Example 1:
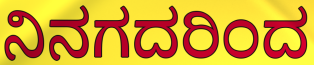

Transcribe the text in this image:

ನಿನಗದರಿಂದ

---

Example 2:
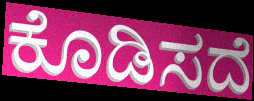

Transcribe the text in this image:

ಕೊಡಿಸದೆ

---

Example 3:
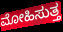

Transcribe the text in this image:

ಮೋಹಿಸುತ್ತ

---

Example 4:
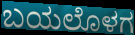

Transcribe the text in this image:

ಬಯಲೊಳಗ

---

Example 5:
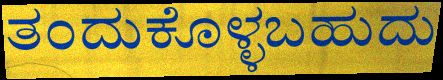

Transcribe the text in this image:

ತಂದುಕೊಳ್ಳಬಹುದು